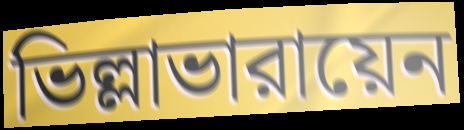
ভিল্লাভারায়েন